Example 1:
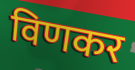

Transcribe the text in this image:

विणकर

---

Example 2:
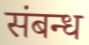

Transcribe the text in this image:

संबन्ध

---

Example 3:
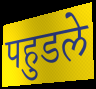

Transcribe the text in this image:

पहुडले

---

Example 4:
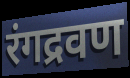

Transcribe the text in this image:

रंगद्रवण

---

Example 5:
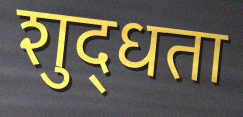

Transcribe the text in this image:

शुद्धता